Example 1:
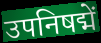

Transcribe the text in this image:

उपनिषद्में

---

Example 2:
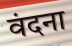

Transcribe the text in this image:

वंदना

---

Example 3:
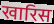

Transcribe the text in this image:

खारिस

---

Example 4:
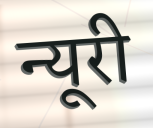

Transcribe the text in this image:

न्यूरी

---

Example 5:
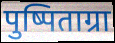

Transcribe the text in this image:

पुष्पिताग्रा